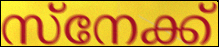
സ്നേക്ക്